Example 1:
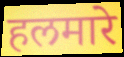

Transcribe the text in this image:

हलमारे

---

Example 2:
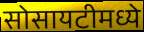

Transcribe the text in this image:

सोसायटीमध्ये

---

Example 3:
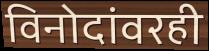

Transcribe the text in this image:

विनोदांवरही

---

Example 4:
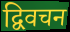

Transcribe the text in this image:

द्विवचन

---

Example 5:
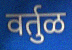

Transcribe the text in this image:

वर्तुळ